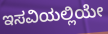
ಇಸವಿಯಲ್ಲಿಯೇ